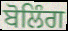
ਬੋਲਿੰਗ